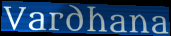
Vardhana